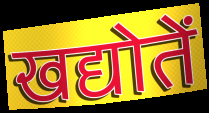
खद्योतें